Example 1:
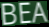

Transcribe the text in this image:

BEA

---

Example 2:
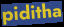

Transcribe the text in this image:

piditha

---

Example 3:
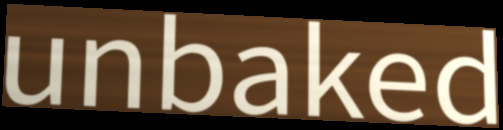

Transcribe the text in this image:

unbaked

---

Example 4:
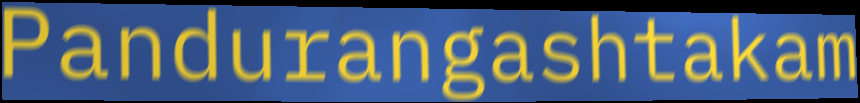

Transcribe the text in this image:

Pandurangashtakam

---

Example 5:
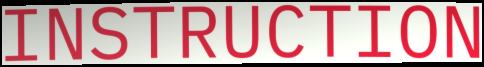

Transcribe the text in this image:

INSTRUCTION